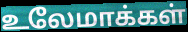
உலேமாக்கள்